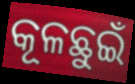
କୂଳଛୁଇଁ